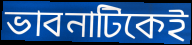
ভাবনাটিকেই